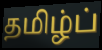
தமிழ்ப்